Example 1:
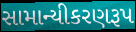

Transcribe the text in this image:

સામાન્યીકરણરૂપ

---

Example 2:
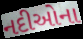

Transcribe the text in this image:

નદીઓના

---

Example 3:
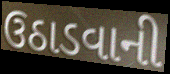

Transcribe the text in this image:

ઉઠાડવાની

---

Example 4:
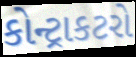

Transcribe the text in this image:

કોન્ટ્રાકટરો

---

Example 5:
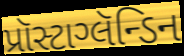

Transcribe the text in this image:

પ્રૉસ્ટાગ્લૅન્ડિન